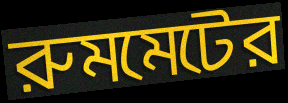
রুমমেটের